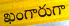
ఖంగారుగా